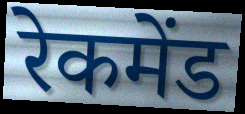
रेकमेंड